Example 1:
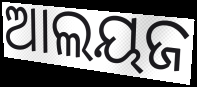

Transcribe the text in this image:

ଆଲୟଜ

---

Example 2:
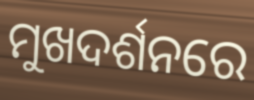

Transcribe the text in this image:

ମୁଖଦର୍ଶନରେ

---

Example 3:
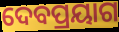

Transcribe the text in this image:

ଦେବପ୍ରୟାଗ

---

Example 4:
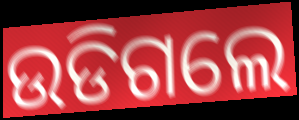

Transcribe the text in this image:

ଉଡିଗଲେ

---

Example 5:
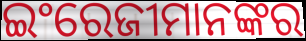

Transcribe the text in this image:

ଇଂରେଜୀମାନଙ୍କର